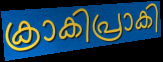
ക്രാകിപ്രാകി